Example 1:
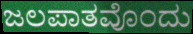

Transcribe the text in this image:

ಜಲಪಾತವೊಂದು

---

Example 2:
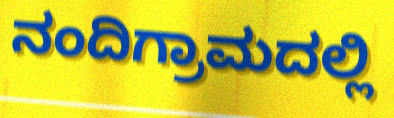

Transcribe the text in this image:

ನಂದಿಗ್ರಾಮದಲ್ಲಿ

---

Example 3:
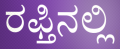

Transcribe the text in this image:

ರಫ್ತಿನಲ್ಲಿ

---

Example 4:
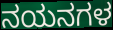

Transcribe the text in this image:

ನಯನಗಳ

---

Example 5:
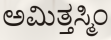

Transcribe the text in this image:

ಅಮಿತ್ತಸ್ಮಿಂ